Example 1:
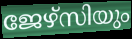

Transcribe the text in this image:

ജേഴ്സിയും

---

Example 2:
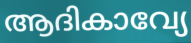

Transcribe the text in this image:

ആദികാവ്യേ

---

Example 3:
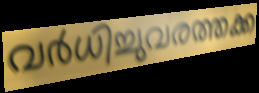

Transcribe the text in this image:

വർധിച്ചുവരത്തക്ക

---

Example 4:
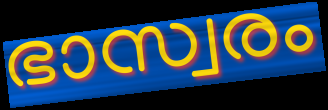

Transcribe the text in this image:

ഭാസ്വരം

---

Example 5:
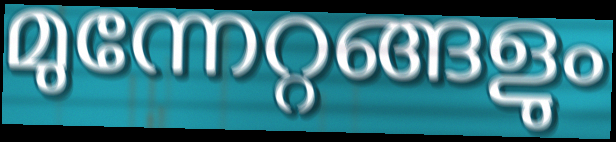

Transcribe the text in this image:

മുന്നേറ്റങ്ങളും